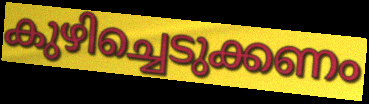
കുഴിച്ചെടുക്കണം